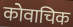
कोवाचिक